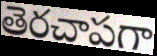
తెరచాపగా